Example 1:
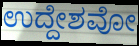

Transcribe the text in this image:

ಉದ್ದೇಶವೋ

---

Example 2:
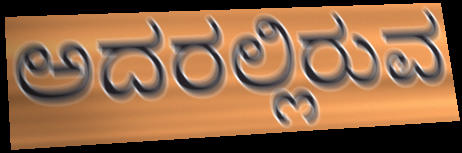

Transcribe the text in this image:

ಅದರಲ್ಲಿರುವ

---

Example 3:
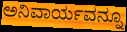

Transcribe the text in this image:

ಅನಿವಾರ್ಯವನ್ನೂ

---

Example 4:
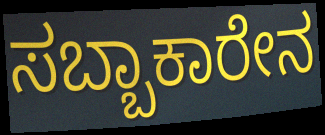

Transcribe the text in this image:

ಸಬ್ಬಾಕಾರೇನ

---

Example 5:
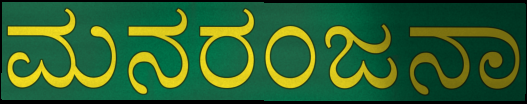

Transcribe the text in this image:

ಮನರಂಜನಾ